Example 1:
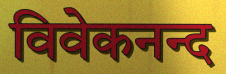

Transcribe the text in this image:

विवेकनन्द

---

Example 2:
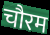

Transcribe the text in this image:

चौरम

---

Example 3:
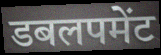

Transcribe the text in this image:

डबलपमेंट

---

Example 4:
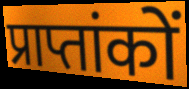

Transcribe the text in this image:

प्राप्तांकों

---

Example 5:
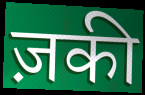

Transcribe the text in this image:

ज़की